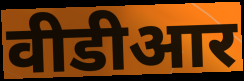
वीडीआर